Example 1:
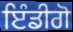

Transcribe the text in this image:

ਇੰਡੀਗੋ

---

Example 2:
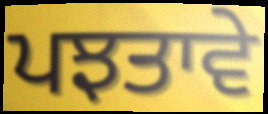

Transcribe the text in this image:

ਪਝਤਾਵੇ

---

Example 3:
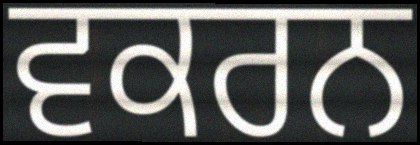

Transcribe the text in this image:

ਵਕਰਨ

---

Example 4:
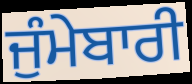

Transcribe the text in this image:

ਜੁੰਮੇਬਾਰੀ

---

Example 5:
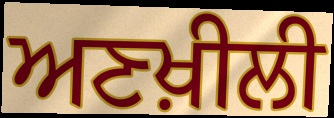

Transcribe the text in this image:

ਅਣਖ਼ੀਲੀ